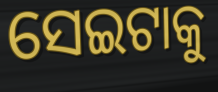
ସେଇଟାକୁ